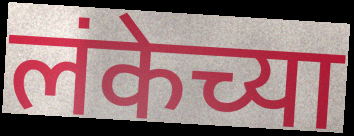
लंकेच्या